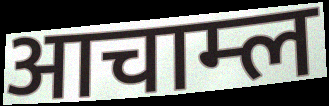
आचाम्ल